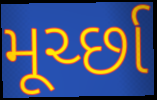
મૂર્ચ્છા